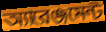
অ্যারেঞ্জমেন্ট